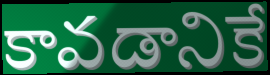
కావడానికే